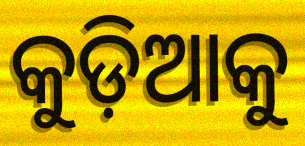
କୁଡ଼ିଆକୁ